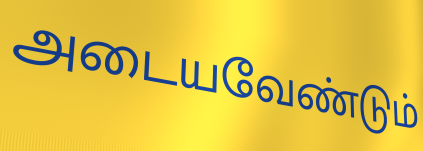
அடையவேண்டும்